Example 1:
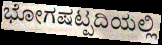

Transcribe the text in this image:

ಭೋಗಷಟ್ಪದಿಯಲ್ಲಿ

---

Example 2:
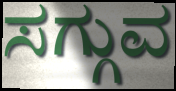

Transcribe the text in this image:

ಸಗ್ಗುವ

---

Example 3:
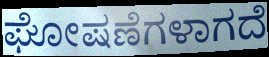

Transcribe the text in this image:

ಘೋಷಣೆಗಳಾಗದೆ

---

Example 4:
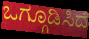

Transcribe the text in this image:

ಒಗ್ಗೂಡಿಸಿದೆ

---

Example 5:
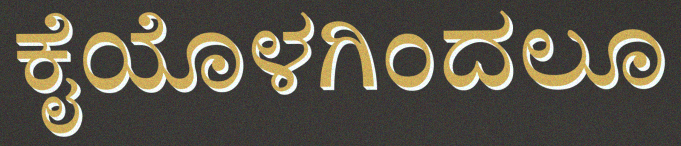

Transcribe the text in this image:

ಕೈಯೊಳಗಿಂದಲೂ